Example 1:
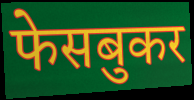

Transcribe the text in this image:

फेसबुकर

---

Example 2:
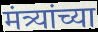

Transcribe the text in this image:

मंत्र्यांच्या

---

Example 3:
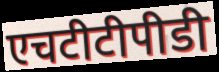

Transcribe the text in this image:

एचटीटीपीडी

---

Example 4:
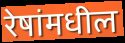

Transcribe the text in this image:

रेषांमधील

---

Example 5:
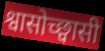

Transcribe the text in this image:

श्वासोच्छ्वासी